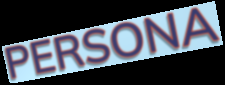
PERSONA